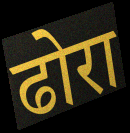
ढोरा